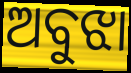
ଅବୁଝା